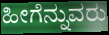
ಹೀಗೆನ್ನುವರು